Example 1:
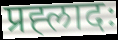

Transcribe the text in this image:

प्रह्लादः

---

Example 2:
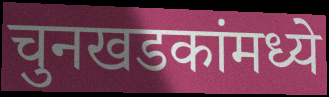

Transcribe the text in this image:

चुनखडकांमध्ये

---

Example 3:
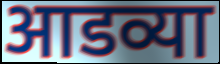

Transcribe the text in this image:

आडव्या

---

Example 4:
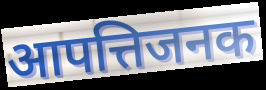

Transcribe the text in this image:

आपत्तिजनक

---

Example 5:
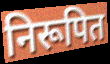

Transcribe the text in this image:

निरूपित